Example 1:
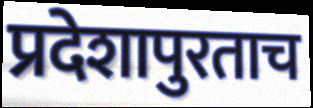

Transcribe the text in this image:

प्रदेशापुरताच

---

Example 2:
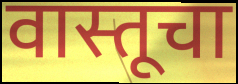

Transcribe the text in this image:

वास्तूचा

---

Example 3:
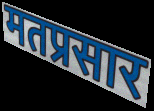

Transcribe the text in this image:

मतप्रसार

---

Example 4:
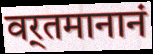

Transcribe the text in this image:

वर्तमानानं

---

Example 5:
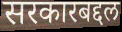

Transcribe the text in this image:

सरकारबद्दल